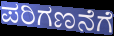
ಪರಿಗಣನೆಗೆ